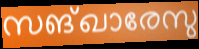
സങ്ഖാരേസു